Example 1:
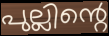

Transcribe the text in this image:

പുല്ലിന്റെ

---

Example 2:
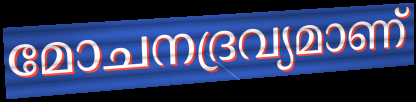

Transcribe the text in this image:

മോചനദ്രവ്യമാണ്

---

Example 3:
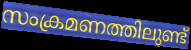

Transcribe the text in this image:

സംക്രമണത്തിലുണ്ട്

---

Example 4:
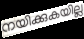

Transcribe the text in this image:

നയിക്കുകയില്ല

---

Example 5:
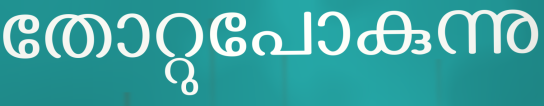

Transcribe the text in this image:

തോറ്റുപോകുന്നു